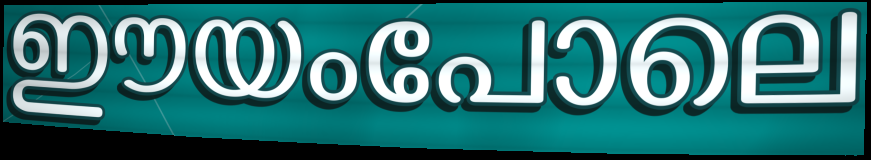
ഈയംപോലെ